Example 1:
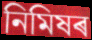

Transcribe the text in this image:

নিমিষৰ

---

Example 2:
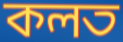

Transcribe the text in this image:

কলত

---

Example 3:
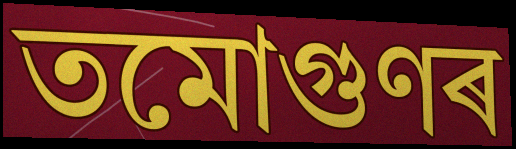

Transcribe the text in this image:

তমোগুণৰ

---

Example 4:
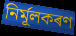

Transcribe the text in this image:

নিৰ্মূলকৰণ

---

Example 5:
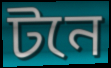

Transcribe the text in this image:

টনে